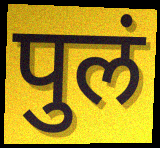
पुलं